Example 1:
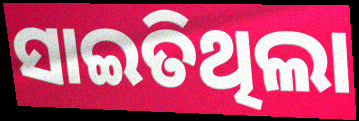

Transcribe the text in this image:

ସାଇତିଥିଲା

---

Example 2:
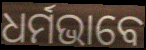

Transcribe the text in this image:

ଧର୍ମଭାବେ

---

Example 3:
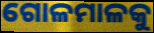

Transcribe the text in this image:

ଗୋଳମାଳକୁ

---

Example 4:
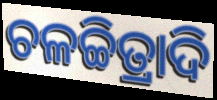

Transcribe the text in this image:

ଚଳଚ୍ଚିତ୍ରାଦି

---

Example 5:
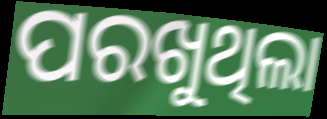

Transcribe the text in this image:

ପରଖୁଥିଲା